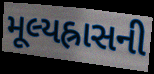
મૂલ્યહ્રાસની